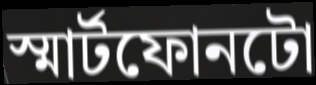
স্মাৰ্টফোনটো